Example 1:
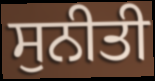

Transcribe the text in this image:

ਸੁਨੀਤੀ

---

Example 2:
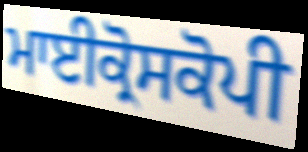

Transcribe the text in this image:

ਮਾਈਕ੍ਰੋਸਕੋਪੀ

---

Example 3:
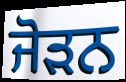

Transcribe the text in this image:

ਜੋੜਨ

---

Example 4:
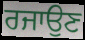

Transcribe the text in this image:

ਰਜਾਉਣ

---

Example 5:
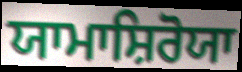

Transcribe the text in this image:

ਯਾਮਾਸ਼ਿਰੋਯਾ